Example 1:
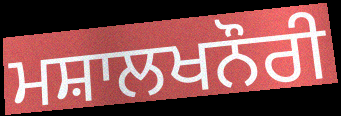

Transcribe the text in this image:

ਮਸ਼ਾਲਖਨੌਰੀ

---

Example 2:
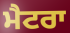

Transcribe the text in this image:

ਮੈਟਰਾ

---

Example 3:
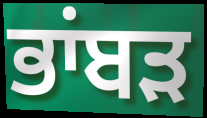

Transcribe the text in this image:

ਭਾਂਬੜ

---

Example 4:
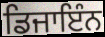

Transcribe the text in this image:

ਡਿਜਾਇੰਨ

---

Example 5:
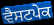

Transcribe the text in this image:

ਵੈਸਟਪੇਕ